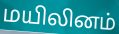
மயிலினம்